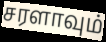
சரளாவும்